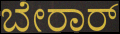
ಬೇರಾರ್